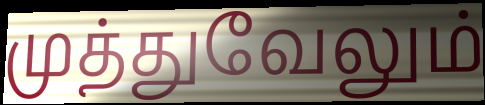
முத்துவேலும்